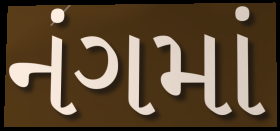
નંગમાં